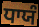
ਧਾਯੰ